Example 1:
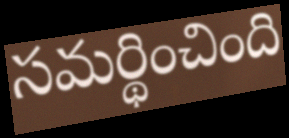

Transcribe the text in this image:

సమర్థించింది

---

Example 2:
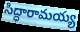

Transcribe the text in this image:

సిద్ధారామయ్య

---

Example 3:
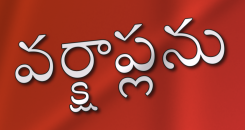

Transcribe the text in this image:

వర్క్షాప్లను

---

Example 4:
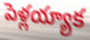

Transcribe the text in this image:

పెళ్లయ్యాక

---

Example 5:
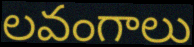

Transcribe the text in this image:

లవంగాలు